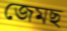
জেমছ